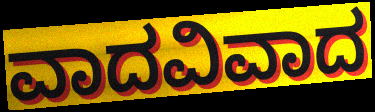
ವಾದವಿವಾದ